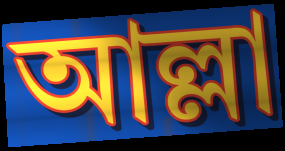
আল্লা